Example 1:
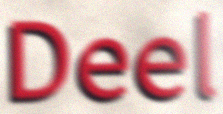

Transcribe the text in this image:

Deel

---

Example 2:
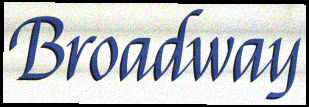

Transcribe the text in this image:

Broadway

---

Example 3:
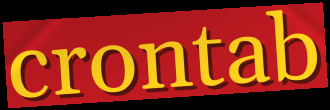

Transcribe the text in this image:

crontab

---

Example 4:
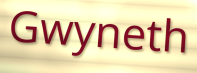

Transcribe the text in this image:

Gwyneth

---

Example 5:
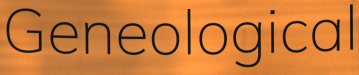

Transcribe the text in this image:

Geneological